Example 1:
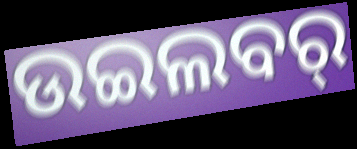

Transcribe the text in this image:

ଉଇଲବର୍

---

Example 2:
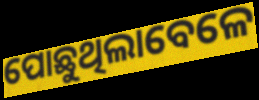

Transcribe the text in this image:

ପୋଛୁଥିଲାବେଳେ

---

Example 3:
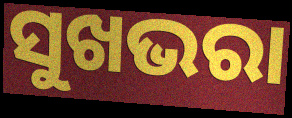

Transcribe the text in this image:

ସୁଖଭରା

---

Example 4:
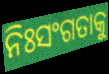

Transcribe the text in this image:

ନିଃସଂଗତାକୁ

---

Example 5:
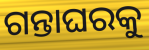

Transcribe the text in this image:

ଗନ୍ତାଘରକୁ